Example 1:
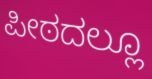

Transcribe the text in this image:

ಪೀಠದಲ್ಲೂ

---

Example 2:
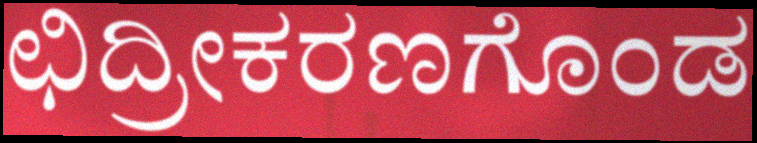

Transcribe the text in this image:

ಛಿದ್ರೀಕರಣಗೊಂಡ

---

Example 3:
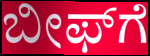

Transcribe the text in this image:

ಬೀಫ್‌ಗೆ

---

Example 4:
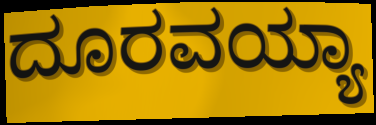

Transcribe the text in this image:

ದೂರವಯ್ಯಾ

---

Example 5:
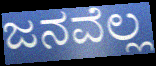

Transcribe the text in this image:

ಜನವೆಲ್ಲ